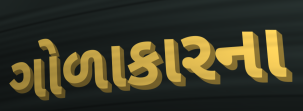
ગોળાકારના